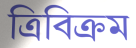
ত্রিবিক্রম